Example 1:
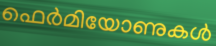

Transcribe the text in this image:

ഫെർമിയോണുകൾ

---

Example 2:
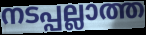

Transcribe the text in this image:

നടപ്പല്ലാത്ത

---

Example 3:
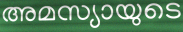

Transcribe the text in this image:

അമസ്യായുടെ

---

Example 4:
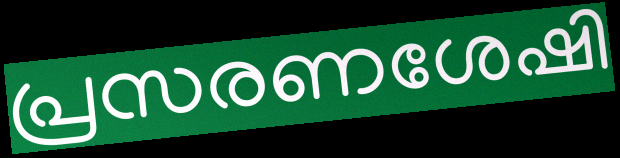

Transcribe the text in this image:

പ്രസരണശേഷി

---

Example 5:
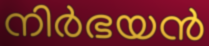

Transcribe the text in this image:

നിർഭയൻ